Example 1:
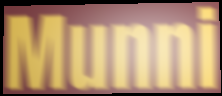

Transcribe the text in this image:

Munni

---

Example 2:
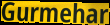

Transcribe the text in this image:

Gurmehar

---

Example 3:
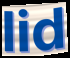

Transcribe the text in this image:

lid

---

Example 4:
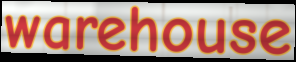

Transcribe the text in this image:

warehouse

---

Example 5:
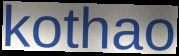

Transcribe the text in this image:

kothao